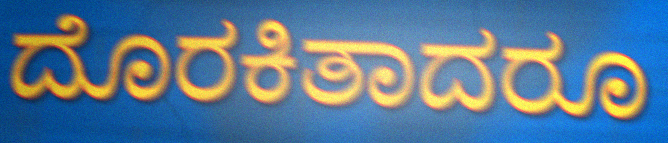
ದೊರಕಿತಾದರೂ